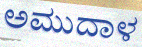
ಅಮುದಾಳ